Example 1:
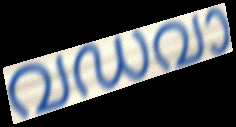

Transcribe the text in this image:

വഡവാ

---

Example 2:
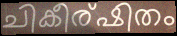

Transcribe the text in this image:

ചികീര്ഷിതം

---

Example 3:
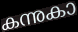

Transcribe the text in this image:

കന്നുകാ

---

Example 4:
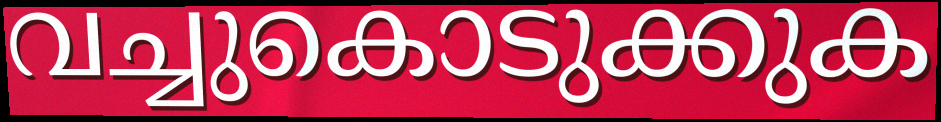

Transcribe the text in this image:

വച്ചുകൊടുക്കുക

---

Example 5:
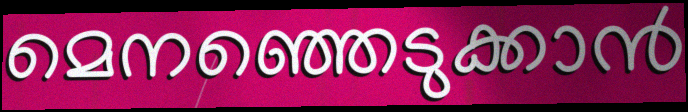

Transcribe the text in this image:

മെനഞ്ഞെടുക്കാൻ